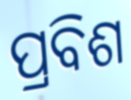
ପ୍ରବିଶ